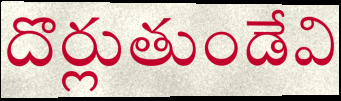
దొర్లుతుండేవి